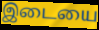
இடையை